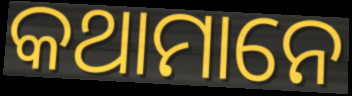
କଥାମାନେ